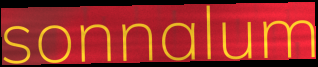
sonnalum